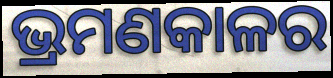
ଭ୍ରମଣକାଳର